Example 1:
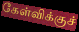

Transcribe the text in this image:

கேள்விக்குச்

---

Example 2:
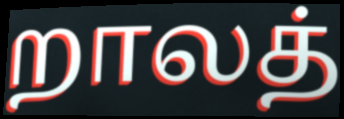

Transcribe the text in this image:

றாலத்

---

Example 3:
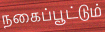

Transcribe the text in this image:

நகைப்பூட்டும்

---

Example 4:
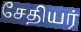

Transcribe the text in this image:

சேதியர்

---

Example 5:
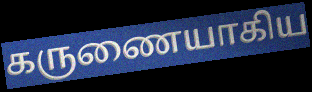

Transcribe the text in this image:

கருணையாகிய